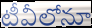
టీవీలోనూ